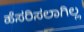
ಹೆಸರಿಸಲಾಗಿಲ್ಲ